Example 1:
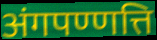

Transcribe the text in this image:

अंगपण्णत्ति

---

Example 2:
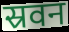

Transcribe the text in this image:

स्रवन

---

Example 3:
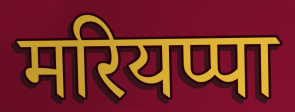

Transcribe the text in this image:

मरियप्पा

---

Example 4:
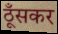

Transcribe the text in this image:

ठूँसकर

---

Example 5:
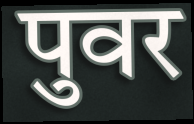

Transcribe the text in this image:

पुवर